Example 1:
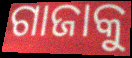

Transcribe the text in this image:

ଗାଜାକୁ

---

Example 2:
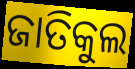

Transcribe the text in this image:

ଜାତିକୁଲ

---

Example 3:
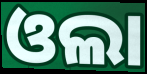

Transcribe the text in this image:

ଓଲା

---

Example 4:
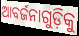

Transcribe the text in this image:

ଆବର୍ଜନାଗୁଡ଼ିକୁ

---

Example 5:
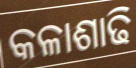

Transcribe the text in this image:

କଳାଶାଢି